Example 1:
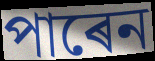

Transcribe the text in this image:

পাৰেন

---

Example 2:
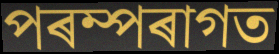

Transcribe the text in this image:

পৰম্পৰাগত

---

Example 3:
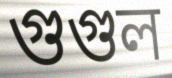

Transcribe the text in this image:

গুগুল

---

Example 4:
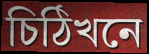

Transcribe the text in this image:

চিঠিখনে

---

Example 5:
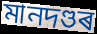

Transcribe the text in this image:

মানদণ্ডৰ